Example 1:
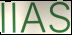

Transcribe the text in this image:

IIAS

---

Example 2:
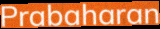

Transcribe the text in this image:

Prabaharan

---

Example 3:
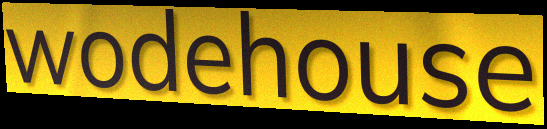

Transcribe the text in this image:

wodehouse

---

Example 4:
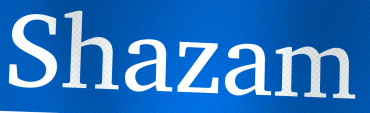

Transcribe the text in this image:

Shazam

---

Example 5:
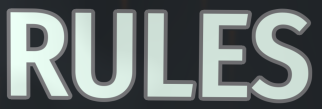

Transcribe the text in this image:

RULES